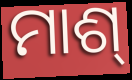
ମାଶ୍